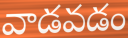
వాడవడం